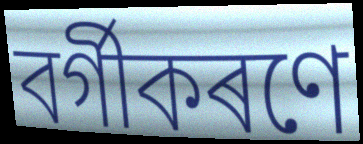
বৰ্গীকৰণে